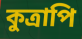
কুত্রাপি